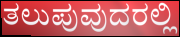
ತಲುಪುವುದರಲ್ಲಿ